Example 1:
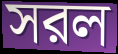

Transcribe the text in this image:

সরল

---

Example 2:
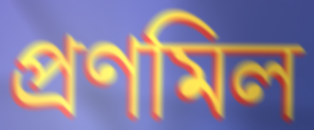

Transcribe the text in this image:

প্রণমিল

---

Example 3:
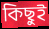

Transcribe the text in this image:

কিছুই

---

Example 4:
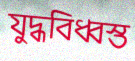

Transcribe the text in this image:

যুদ্ধবিধ্বস্ত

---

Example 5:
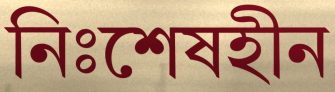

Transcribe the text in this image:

নিঃশেষহীন